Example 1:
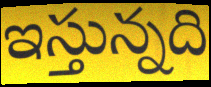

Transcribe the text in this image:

ఇస్తున్నది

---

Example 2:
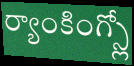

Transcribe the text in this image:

ర్యాంకింగ్స్లో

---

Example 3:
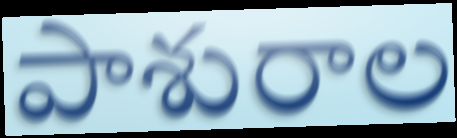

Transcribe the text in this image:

పాశురాల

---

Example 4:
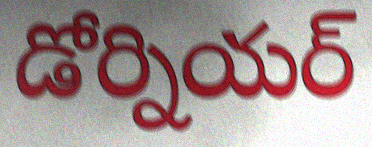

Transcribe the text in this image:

డోర్నియర్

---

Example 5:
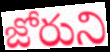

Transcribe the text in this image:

జోరుని